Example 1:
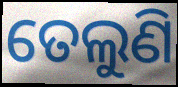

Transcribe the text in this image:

ତେଲୁଣି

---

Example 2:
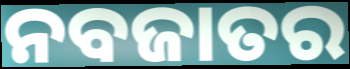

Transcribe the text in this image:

ନବଜାତର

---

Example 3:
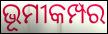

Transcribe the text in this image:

ଭୂମୀକମ୍ପର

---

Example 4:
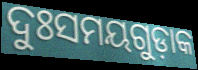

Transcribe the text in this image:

ଦୁଃସମୟଗୁଡ଼ାକ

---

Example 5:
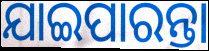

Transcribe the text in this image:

ଯାଇପାରନ୍ତା